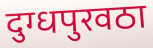
दुग्धपुरवठा